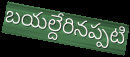
బయల్దేరినప్పటి